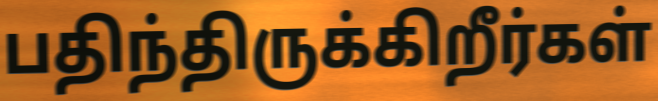
பதிந்திருக்கிறீர்கள்